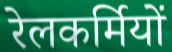
रेलकर्मियों